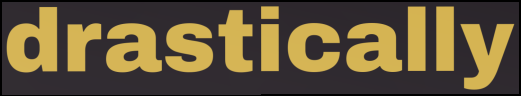
drastically